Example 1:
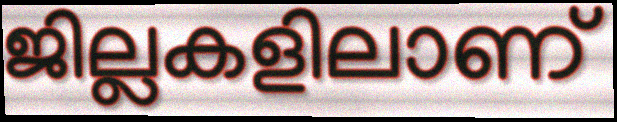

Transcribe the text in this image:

ജില്ലകളിലാണ്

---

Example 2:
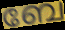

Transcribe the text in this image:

ബേ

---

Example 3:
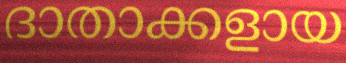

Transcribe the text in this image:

ദാതാക്കളായ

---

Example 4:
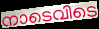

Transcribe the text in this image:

നാടെവിടെ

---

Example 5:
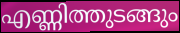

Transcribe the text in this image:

എണ്ണിത്തുടങ്ങും